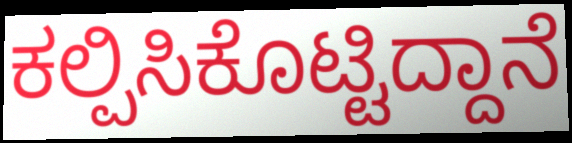
ಕಲ್ಪಿಸಿಕೊಟ್ಟಿದ್ದಾನೆ